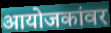
आयोजकांवर